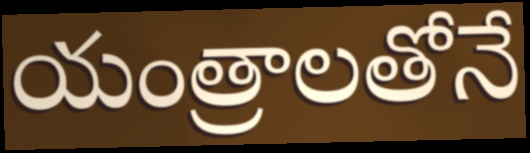
యంత్రాలతోనే